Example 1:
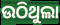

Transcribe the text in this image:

ଉଠିଥୁଲା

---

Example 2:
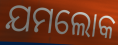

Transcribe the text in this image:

ଯମଲୋକ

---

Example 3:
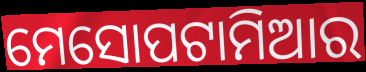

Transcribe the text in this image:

ମେସୋପଟାମିଆର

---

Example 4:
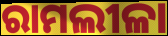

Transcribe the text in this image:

ରାମଲୀଳା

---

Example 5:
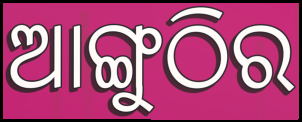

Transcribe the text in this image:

ଆଙ୍ଗୁଠିର